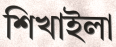
শিখাইলা